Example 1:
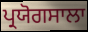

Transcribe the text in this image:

ਪ੍ਰਯੋਗਸਾਲਾ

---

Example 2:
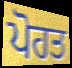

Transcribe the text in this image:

ਪੋਹਤ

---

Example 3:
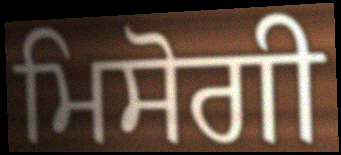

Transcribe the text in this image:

ਮਿਸੋਗੀ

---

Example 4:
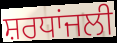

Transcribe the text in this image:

ਸ਼ਰਧਾਂਜਲੀ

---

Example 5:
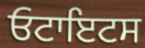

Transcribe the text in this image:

ਓਟਾਇਟਸ